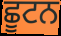
ਛੂਟਨ